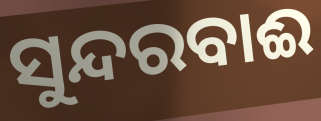
ସୁନ୍ଦରବାଈ